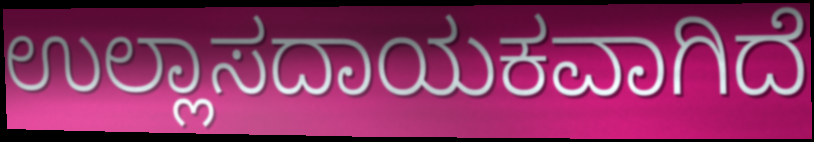
ಉಲ್ಲಾಸದಾಯಕವಾಗಿದೆ